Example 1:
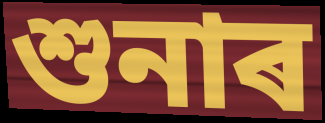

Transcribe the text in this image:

শুনাৰ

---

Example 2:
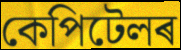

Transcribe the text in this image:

কেপিটেলৰ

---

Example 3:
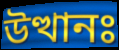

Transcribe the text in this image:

উত্থানঃ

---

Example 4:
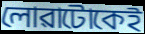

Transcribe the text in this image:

লোৱাটোকেই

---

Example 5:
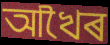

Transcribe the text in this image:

আখৈৰ